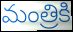
మంత్రికి